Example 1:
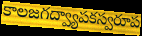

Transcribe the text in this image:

కాలజగద్వ్యాపకస్వరూప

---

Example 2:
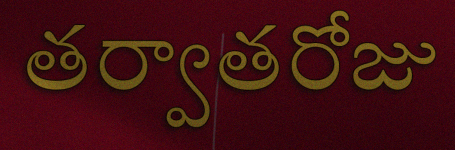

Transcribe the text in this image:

తర్వాతరోజు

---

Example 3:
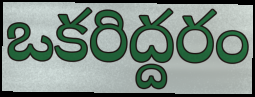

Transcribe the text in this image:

ఒకరిద్దరం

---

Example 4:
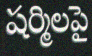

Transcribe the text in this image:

షర్మిలపై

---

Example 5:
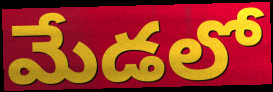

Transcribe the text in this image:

మేడలో